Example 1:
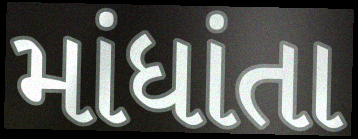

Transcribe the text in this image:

માંધાંતા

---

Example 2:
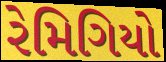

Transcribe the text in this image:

રેમિગિયો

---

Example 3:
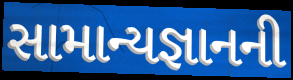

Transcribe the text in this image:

સામાન્યજ્ઞાનની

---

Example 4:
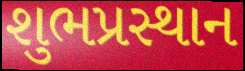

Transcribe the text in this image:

શુભપ્રસ્થાન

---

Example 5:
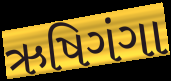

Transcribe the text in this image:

ઋષિગંગા